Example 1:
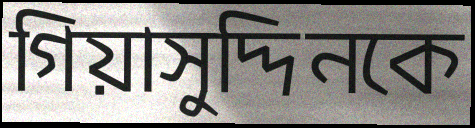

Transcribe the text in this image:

গিয়াসুদ্দিনকে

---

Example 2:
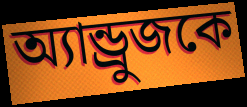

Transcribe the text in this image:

অ্যান্ড্রুজকে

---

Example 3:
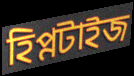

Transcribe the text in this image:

হিপ্নটাইজ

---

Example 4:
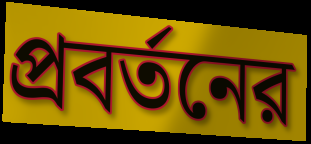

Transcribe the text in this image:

প্রবর্তনের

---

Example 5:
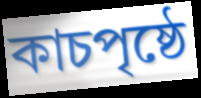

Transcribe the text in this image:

কাচপৃষ্ঠে